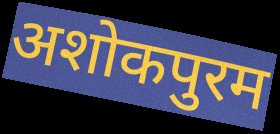
अशोकपुरम